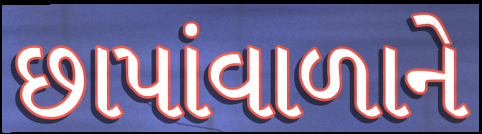
છાપાંવાળાને